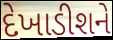
દેખાડીશને